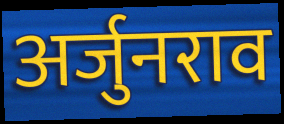
अर्जुनराव